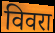
विवरा